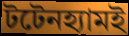
টটেনহ্যামই